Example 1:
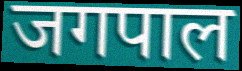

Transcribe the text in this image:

जगपाल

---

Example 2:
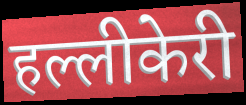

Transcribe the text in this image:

हल्लीकेरी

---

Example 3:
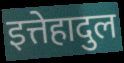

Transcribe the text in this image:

इत्तेहादुल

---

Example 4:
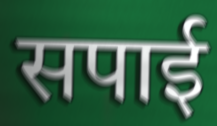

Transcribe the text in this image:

सपाई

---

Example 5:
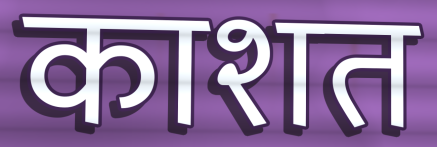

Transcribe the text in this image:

काशत